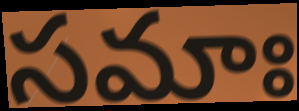
సమాః